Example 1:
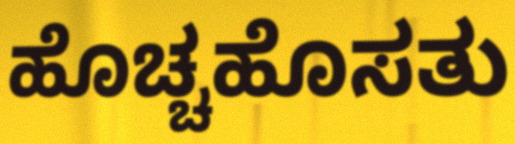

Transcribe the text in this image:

ಹೊಚ್ಚಹೊಸತು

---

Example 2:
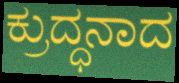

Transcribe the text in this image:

ಕ್ರುದ್ಧನಾದ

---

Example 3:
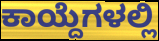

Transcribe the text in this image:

ಕಾಯ್ದೆಗಳಲ್ಲಿ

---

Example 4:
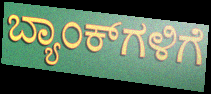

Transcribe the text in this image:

ಬ್ಯಾಂಕ್‌ಗಳಿಗೆ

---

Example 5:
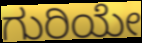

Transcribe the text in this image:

ಗುರಿಯೇ